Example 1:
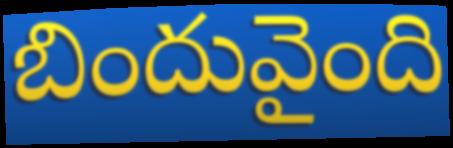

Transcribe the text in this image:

బిందువైంది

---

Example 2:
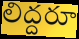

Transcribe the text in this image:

లిద్దరూ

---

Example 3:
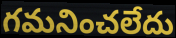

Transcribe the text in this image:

గమనించలేదు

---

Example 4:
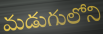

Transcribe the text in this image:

మడుగులోని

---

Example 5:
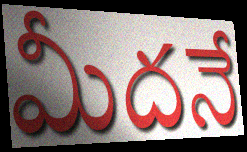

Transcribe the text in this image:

మీదనే